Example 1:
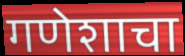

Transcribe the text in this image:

गणेशाचा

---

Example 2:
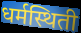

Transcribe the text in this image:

धर्मस्थिती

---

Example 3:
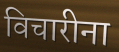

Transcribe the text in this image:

विचारीना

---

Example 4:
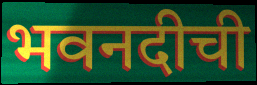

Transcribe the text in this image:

भवनदीची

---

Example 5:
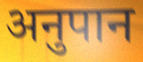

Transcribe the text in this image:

अनुपान